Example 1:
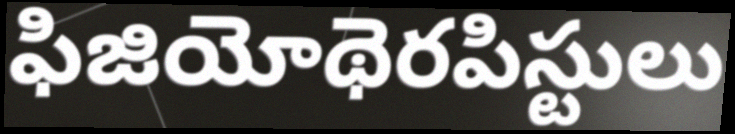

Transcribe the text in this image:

ఫిజియోథెరపిస్టులు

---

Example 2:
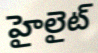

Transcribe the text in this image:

హైలైట్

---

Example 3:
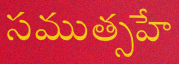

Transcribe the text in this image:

సముత్సహే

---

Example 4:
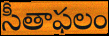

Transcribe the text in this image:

సీతాఫలం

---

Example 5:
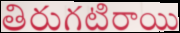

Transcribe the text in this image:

తిరుగటిరాయి